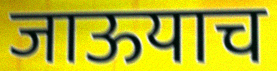
जाऊयाच